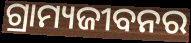
ଗ୍ରାମ୍ୟଜୀବନର